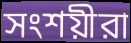
সংশয়ীরা